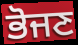
ਭੋਜਣ